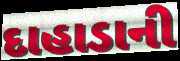
દાહાડાની